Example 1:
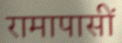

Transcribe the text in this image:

रामापासीं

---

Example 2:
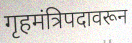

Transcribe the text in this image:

गृहमंत्रिपदावरून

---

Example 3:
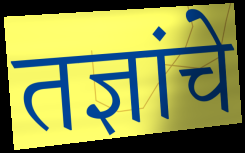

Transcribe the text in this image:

तज्ञांचे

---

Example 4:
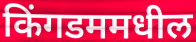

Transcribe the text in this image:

किंगडममधील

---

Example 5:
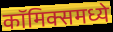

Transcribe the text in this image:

कॉमिक्समध्ये